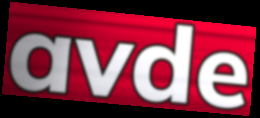
avde